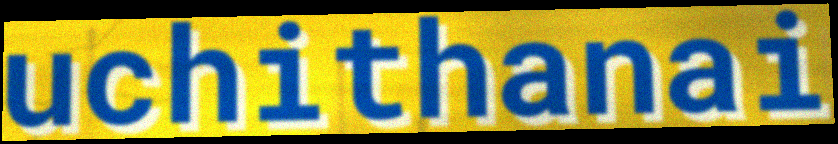
uchithanai